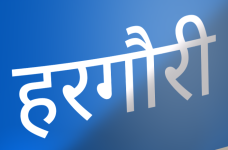
हरगौरी